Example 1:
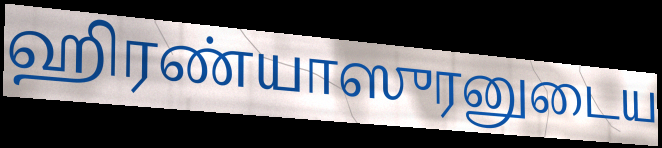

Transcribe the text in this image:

ஹிரண்யாஸுரனுடைய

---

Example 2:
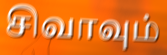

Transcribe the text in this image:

சிவாவும்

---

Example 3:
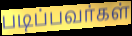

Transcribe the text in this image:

படிப்பவர்கள்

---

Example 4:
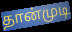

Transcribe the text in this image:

தான்முடி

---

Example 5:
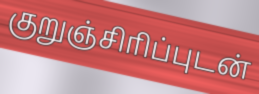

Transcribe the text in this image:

குறுஞ்சிரிப்புடன்